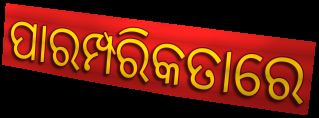
ପାରମ୍ପରିକତାରେ